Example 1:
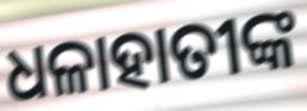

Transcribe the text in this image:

ଧଳାହାତୀଙ୍କ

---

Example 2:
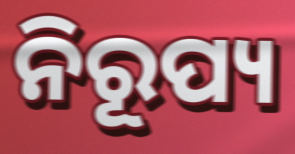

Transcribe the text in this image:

ନିରୂପ୍ୟ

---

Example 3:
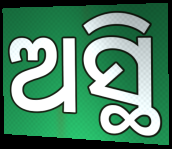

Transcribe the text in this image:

ଅସ୍ଥି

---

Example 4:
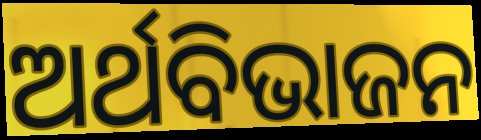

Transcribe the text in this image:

ଅର୍ଥବିଭାଜନ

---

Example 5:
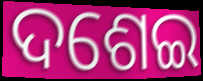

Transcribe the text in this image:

ଦଶେଇ